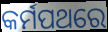
କର୍ମପଥରେ